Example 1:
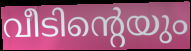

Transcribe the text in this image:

വീടിന്റെയും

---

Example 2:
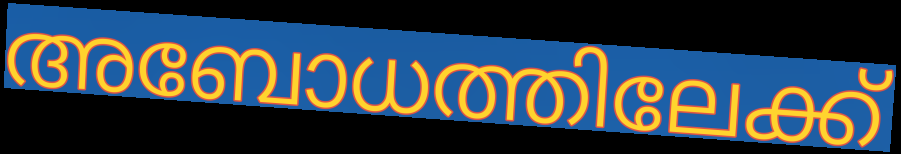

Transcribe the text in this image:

അബോധത്തിലേക്ക്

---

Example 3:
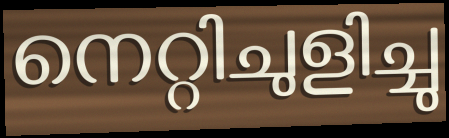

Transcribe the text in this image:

നെറ്റിചുളിച്ചു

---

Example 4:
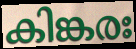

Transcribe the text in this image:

കിങ്കരഃ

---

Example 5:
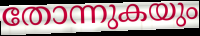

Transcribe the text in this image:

തോന്നുകയും